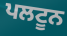
ਪਲਟੂਨ